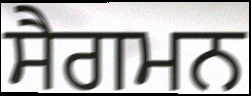
ਸੈਗਮਨ